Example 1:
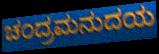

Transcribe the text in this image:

ಚಂದ್ರಮನುದಯ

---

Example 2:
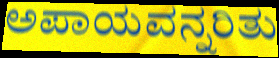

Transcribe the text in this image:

ಅಪಾಯವನ್ನರಿತು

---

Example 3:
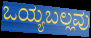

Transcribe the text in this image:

ಒಯ್ಯಬಲ್ಲವು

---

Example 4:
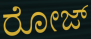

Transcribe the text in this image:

ರೋಜ್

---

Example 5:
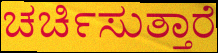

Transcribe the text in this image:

ಚರ್ಚಿಸುತ್ತಾರೆ